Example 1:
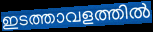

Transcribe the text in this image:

ഇടത്താവളത്തിൽ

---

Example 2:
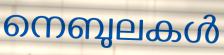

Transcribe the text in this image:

നെബുലകൾ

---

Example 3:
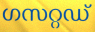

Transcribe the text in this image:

ഗസറ്റഡ്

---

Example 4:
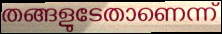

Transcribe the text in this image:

തങ്ങളുടേതാണെന്ന്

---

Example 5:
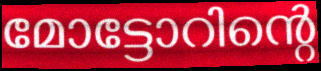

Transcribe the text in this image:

മോട്ടോറിന്റെ